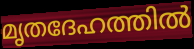
മൃതദേഹത്തിൽ